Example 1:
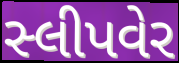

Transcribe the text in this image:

સ્લીપવેર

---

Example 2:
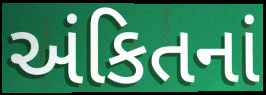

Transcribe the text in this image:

અંકિતનાં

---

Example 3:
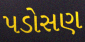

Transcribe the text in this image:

પડોસણ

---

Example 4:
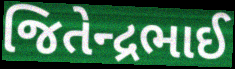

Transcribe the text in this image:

જિતેન્દ્રભાઈ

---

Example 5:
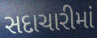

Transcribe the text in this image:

સદાચારીમાં